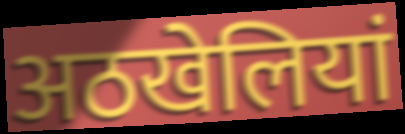
अठखेलियां